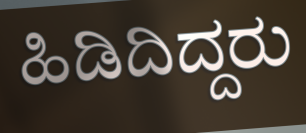
ಹಿಡಿದಿದ್ದರು